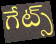
గేట్స్